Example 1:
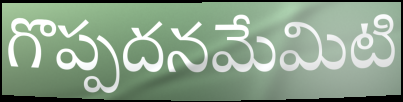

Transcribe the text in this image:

గొప్పదనమేమిటి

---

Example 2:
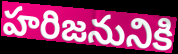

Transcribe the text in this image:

హరిజనునికి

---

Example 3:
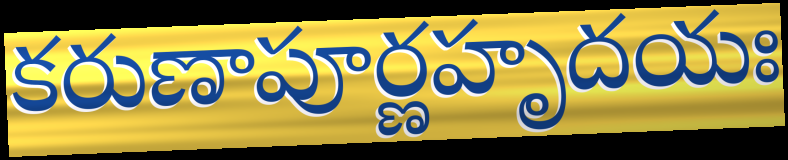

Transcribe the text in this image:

కరుణాపూర్ణహృదయః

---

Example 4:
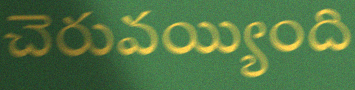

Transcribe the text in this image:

చెరువయ్యింది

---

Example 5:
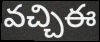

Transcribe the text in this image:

వచ్చిఈ